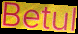
Betul